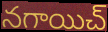
నగాయిచ్